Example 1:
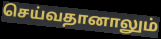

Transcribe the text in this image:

செய்வதானாலும்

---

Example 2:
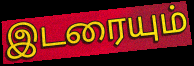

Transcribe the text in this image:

இடரையும்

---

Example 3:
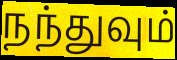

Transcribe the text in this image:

நந்துவும்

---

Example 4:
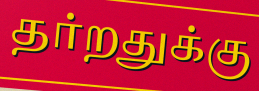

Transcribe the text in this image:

தர்றதுக்கு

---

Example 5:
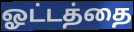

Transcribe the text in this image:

ஓட்டத்தை